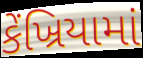
કેંખ્રિયામાં